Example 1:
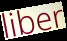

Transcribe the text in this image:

liber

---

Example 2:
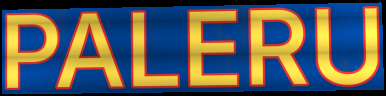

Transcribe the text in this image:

PALERU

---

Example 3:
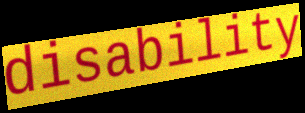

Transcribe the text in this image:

disability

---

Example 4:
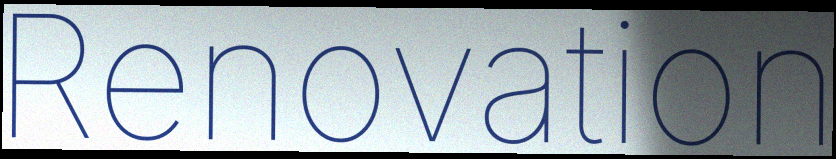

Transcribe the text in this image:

Renovation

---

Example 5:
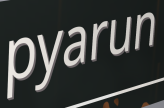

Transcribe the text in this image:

pyarun